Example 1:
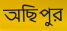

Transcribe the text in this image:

অছিপুর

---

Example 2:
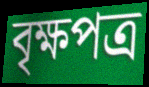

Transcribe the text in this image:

বৃক্ষপত্র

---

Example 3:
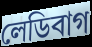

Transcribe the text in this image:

লেডিবাগ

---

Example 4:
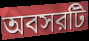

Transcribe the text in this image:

অবসরটি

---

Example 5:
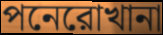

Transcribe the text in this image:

পনেরোখানা